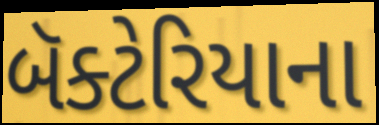
બૅક્ટેરિયાના